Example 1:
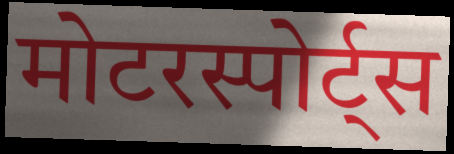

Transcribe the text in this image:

मोटरस्पोर्ट्स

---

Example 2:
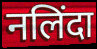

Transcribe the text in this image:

नलिंदा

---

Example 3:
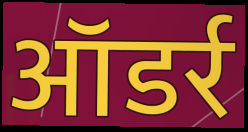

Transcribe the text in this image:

ऑडर्र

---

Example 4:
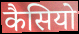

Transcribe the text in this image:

कैसियो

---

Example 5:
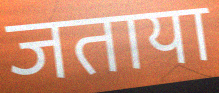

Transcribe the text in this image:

जताया